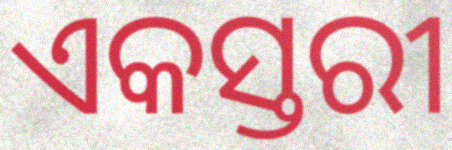
ଏକସ୍ତରୀ